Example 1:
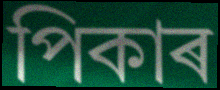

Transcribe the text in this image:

পিকাৰ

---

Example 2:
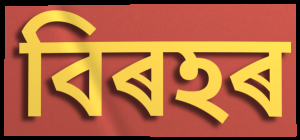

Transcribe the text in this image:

বিৰহৰ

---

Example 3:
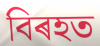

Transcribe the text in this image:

বিৰহত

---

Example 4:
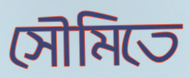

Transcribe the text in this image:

সৌমিতে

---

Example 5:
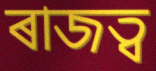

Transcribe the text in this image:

ৰাজত্ব